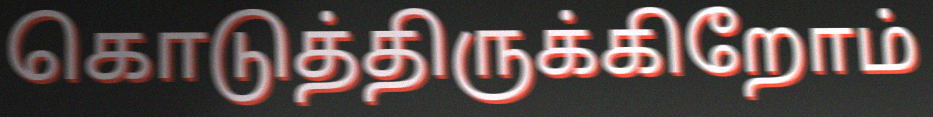
கொடுத்திருக்கிறோம்